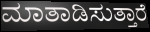
ಮಾತಾಡಿಸುತ್ತಾರೆ